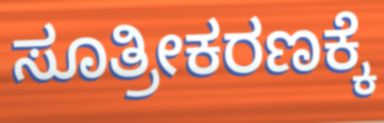
ಸೂತ್ರೀಕರಣಕ್ಕೆ